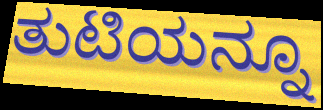
ತುಟಿಯನ್ನೂ